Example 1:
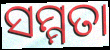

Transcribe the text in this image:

ସମ୍ମତା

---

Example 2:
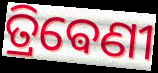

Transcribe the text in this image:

ତ୍ରିଵେଣୀ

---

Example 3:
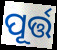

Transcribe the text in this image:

ପୂର୍ତ୍ତ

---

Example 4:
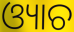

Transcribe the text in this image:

ଓ୍ୟାଚ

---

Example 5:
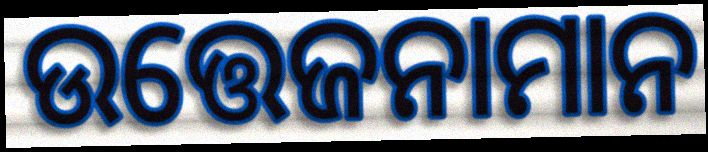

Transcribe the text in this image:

ଉତ୍ତେଜନାମାନ